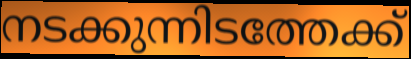
നടക്കുന്നിടത്തേക്ക്